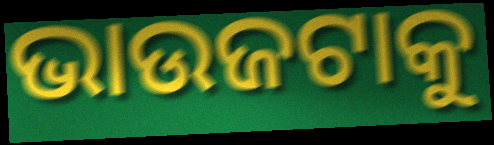
ଭାଉଜଟାକୁ